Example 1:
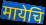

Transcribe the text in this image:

मायेचि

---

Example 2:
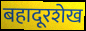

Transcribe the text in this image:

बहादूरशेख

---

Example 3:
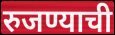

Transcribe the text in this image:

रुजण्याची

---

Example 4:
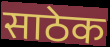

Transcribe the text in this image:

साठेक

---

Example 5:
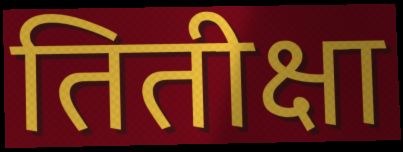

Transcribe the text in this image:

तितीक्षा